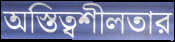
অস্তিত্বশীলতার